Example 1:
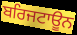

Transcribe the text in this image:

ਬਰਿਜਟਾਊਨ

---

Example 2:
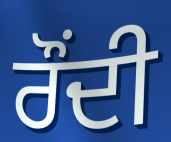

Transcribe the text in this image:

ਰੌਂਦੀ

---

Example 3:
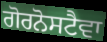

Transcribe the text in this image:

ਗੋਰਨੋਸਟੈਵਾ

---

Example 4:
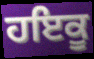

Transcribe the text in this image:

ਹਇਕੂ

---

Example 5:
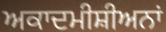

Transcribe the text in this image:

ਅਕਾਦਮੀਸ਼ੀਅਨਾਂ